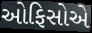
ઓફિસોએ